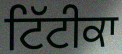
ਟਿੱਟੀਕਾ